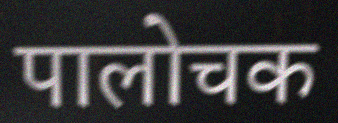
पालोचक